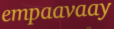
empaavaay